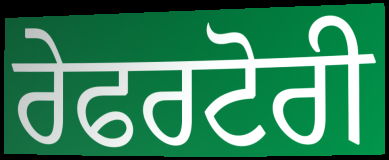
ਰੇਫਰਟੋਰੀ